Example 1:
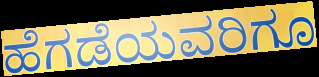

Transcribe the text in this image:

ಹೆಗಡೆಯವರಿಗೂ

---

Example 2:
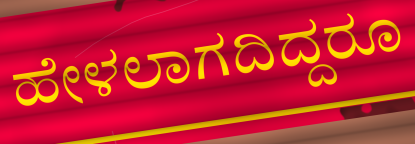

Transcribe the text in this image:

ಹೇಳಲಾಗದಿದ್ದರೂ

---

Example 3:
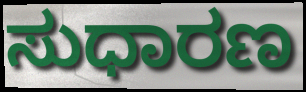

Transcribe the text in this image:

ಸುಧಾರಣ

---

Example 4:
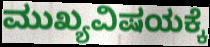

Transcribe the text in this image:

ಮುಖ್ಯವಿಷಯಕ್ಕೆ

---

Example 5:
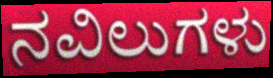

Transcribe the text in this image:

ನವಿಲುಗಳು